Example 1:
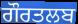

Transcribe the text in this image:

ਗੌਰਤਲਬ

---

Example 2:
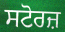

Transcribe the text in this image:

ਸਟੋਰਜ਼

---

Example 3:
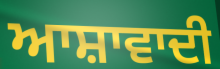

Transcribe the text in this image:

ਆਸ਼ਾਵਾਦੀ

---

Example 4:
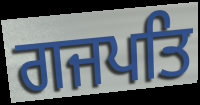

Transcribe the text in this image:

ਗਜਪਤਿ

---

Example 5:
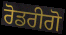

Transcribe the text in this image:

ਰੋਡਰੀਗੋ